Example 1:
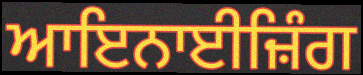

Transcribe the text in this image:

ਆਇਨਾਈਜ਼ਿੰਗ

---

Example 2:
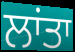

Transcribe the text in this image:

ਲਾਂਤਾ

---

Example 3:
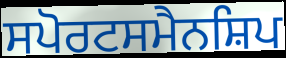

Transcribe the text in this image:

ਸਪੋਰਟਸਮੈਨਸ਼ਿਪ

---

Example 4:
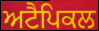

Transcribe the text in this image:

ਅਟੈਪਿਕਲ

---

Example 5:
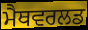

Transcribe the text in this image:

ਮੈਥਵਰਲਡ